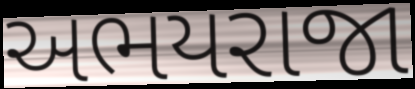
અભયરાજા